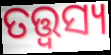
ତତ୍ତ୍ୱସ୍ୟ